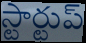
స్టార్టుప్